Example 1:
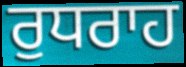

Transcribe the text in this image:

ਰੁਧਰਾਹ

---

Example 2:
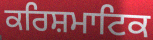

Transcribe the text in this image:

ਕਰਿਸ਼ਮਾਟਿਕ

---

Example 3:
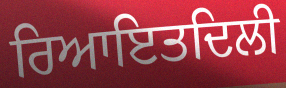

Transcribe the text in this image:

ਰਿਆਇਤਦਿਲੀ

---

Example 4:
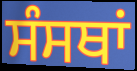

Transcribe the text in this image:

ਸੰਸਥਾਂ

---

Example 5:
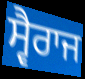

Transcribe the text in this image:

ਸ੍ਵੈਰਾਜ